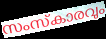
സംസ്‌കാരവും